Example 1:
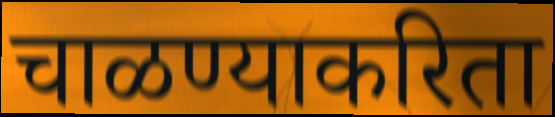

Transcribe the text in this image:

चाळण्याकरिता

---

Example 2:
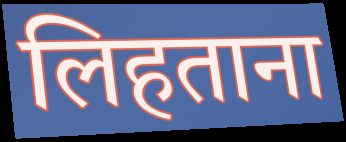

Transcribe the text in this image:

लिहताना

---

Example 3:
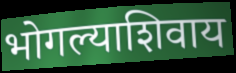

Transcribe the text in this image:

भोगल्याशिवाय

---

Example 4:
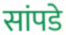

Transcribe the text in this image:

सांपडे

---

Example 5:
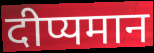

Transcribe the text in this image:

दीप्यमान